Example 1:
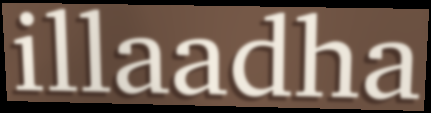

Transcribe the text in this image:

illaadha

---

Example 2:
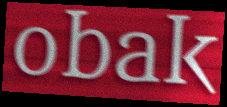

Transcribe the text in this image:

obak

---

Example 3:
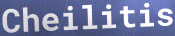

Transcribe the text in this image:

Cheilitis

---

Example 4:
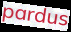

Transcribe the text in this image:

pardus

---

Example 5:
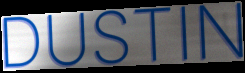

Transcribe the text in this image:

DUSTIN